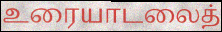
உரையாடலைத்